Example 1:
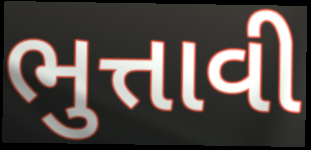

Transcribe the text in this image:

ભુત્તાવી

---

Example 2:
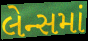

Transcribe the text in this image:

લેન્સમાં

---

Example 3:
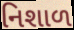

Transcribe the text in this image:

નિશાળ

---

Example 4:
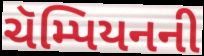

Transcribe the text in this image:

ચૅમ્પિયનની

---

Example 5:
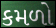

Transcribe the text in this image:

કમળો